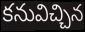
కనువిచ్చిన